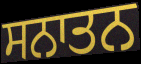
ਸਨਾਤਨ